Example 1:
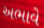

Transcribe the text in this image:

અભાવે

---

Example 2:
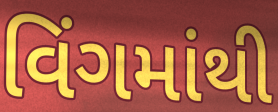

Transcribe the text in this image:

વિંગમાંથી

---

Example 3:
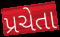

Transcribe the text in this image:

પ્રચેતા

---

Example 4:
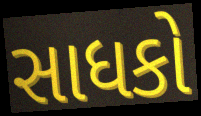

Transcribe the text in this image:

સાધકો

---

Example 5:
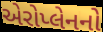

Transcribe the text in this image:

એરોપ્લેનનો